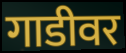
गाडीवर